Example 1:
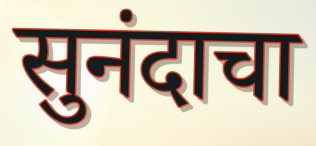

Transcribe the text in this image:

सुनंदाचा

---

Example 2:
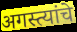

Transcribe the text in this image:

अगस्त्यांचे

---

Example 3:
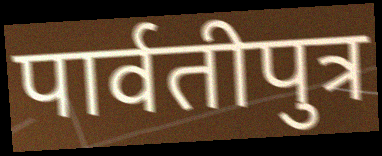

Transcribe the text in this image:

पार्वतीपुत्र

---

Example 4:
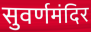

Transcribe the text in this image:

सुवर्णमंदिर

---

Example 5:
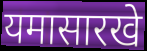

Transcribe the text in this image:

यमासारखे